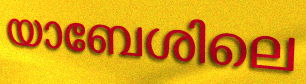
യാബേശിലെ